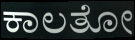
ಕಾಲತೋ